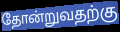
தோன்றுவதற்கு